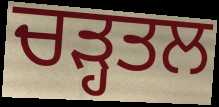
ਚੜ੍ਹਤਲ